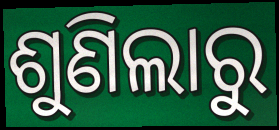
ଶୁଣିଲାରୁ